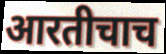
आरतीचाच